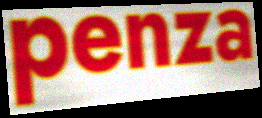
penza